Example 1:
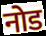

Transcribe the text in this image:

नोड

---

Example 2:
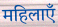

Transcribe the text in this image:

महिलाएँ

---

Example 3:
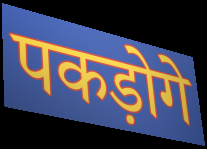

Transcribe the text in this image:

पकड़ोगे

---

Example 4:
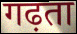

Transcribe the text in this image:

गढ़ता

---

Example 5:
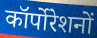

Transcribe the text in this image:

कॉर्पोरेशनों